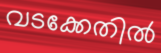
വടക്കേതിൽ